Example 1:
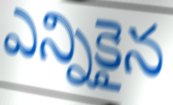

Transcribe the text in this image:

ఎన్నికైన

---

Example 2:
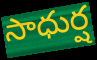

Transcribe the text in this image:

సాధుర్ష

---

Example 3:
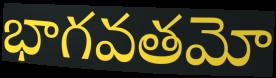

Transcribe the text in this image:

భాగవతమో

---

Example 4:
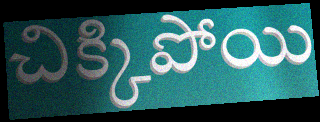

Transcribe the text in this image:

చిక్కిపోయి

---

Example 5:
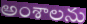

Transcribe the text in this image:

అంశాలను